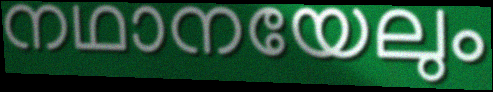
നഥാനയേലും